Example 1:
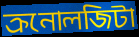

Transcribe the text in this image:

ক্রনোলজিটা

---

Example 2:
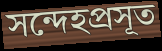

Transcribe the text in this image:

সন্দেহপ্রসূত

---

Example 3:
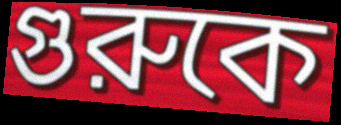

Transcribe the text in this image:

গুরুকে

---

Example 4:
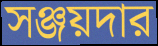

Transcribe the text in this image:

সঞ্জয়দার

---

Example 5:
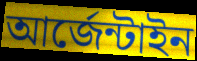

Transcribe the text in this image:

আর্জেন্টাইন